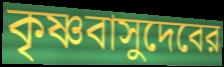
কৃষ্ণবাসুদেবের